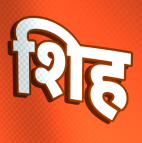
शिह